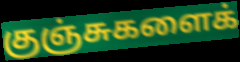
குஞ்சுகளைக்